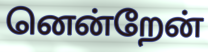
னென்றேன்